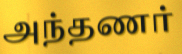
அந்தணர்